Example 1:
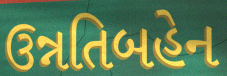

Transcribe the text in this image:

ઉન્નતિબહેન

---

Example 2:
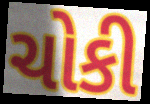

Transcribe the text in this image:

ચોકી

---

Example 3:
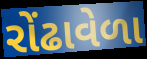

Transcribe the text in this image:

રોંઢાવેળા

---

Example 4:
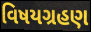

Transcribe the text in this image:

વિષયગ્રહણ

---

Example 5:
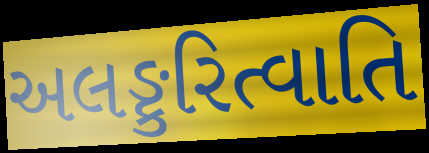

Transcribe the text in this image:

અલઙ્કરિત્વાતિ